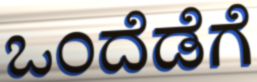
ಒಂದೆಡೆಗೆ